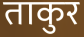
ताकुर